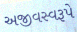
અજીવસ્વરૂપે